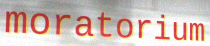
moratorium